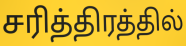
சரித்திரத்தில்